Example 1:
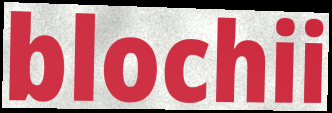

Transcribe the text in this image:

blochii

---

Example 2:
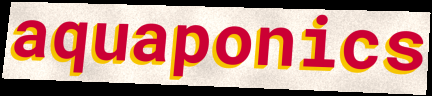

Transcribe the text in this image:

aquaponics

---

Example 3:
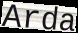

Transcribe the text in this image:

Arda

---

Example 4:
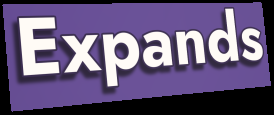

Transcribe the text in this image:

Expands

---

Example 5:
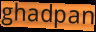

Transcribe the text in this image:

ghadpan